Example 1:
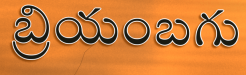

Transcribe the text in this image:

బ్రియంబగు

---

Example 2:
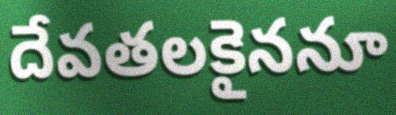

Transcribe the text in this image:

దేవతలకైననూ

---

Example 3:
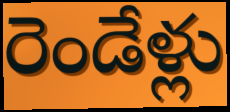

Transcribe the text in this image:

రెండేళ్లు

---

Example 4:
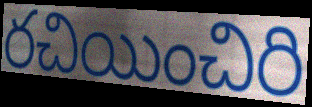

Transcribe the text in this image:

రచియించిరి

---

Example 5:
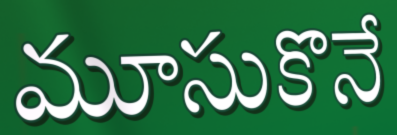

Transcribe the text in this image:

మూసుకొనే